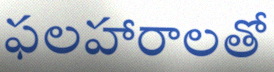
ఫలహారాలతో